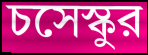
চসেস্কুর